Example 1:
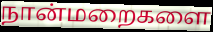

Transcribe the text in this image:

நான்மறைகளை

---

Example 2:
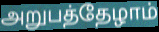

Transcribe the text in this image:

அறுபத்தேழாம்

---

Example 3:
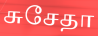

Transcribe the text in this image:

சுசேதா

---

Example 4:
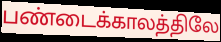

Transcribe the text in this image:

பண்டைக்காலத்திலே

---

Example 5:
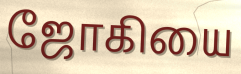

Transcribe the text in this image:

ஜோகியை